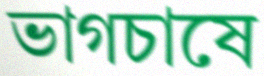
ভাগচাষে